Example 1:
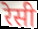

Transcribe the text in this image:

रेसी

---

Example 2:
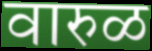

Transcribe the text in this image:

वारुळ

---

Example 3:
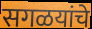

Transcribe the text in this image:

सगळयांचे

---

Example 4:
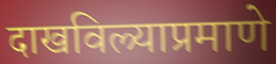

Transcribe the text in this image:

दाखविल्याप्रमाणे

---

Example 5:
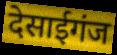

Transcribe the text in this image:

देसाईगंज